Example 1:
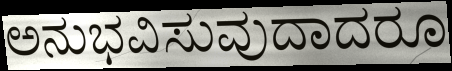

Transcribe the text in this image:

ಅನುಭವಿಸುವುದಾದರೂ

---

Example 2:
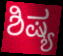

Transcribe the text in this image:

ಶಿಷ್ಯ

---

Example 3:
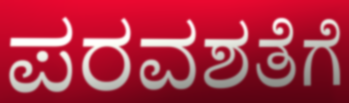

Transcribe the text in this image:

ಪರವಶತೆಗೆ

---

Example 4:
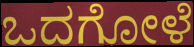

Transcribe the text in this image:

ಒದಗೋಳೆ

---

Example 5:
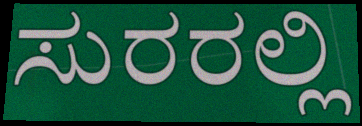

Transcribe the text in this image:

ಸುರರಲ್ಲಿ